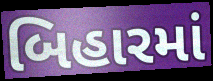
બિહારમાં